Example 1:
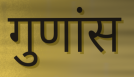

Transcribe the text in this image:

गुणांस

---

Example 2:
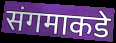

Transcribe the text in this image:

संगमाकडे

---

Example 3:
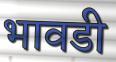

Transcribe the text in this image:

भावडी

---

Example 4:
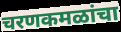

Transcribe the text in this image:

चरणकमळांचा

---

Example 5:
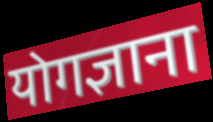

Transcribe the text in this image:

योगज्ञाना